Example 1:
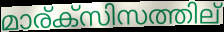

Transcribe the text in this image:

മാര്ക്സിസത്തില്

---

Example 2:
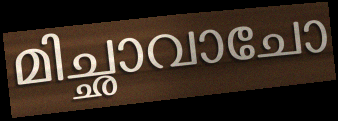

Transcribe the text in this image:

മിച്ഛാവാചോ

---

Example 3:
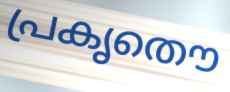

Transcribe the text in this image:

പ്രകൃതൌ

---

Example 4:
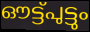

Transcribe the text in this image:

ഔട്ട്പുട്ടും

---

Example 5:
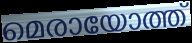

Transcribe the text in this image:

മെരായോത്ത്